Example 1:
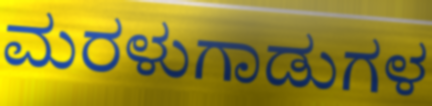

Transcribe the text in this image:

ಮರಳುಗಾಡುಗಳ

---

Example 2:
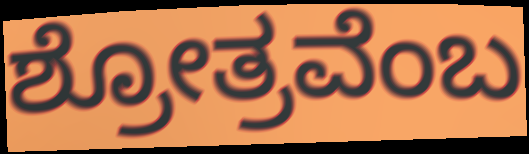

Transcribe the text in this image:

ಶ್ರೋತ್ರವೆಂಬ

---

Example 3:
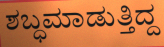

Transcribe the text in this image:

ಶಬ್ಧಮಾಡುತ್ತಿದ್ದ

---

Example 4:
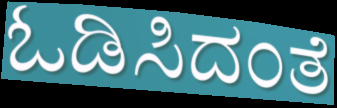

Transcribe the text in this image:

ಓಡಿಸಿದಂತೆ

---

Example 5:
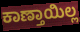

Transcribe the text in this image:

ಕಾಣ್ತಾಯಿಲ್ಲ